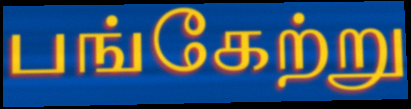
பங்கேற்று